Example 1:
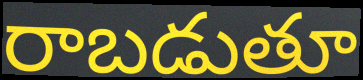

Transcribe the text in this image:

రాబడుతూ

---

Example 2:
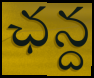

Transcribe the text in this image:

ఛన్ద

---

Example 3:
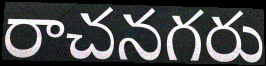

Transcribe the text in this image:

రాచనగరు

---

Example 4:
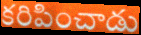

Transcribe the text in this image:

కరిపించాడు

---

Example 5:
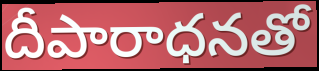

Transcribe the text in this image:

దీపారాధనతో